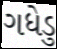
ગધેડુ